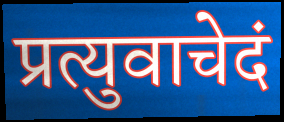
प्रत्युवाचेदं